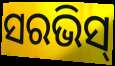
ସରଭିସ୍